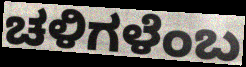
ಚಳಿಗಳೆಂಬ